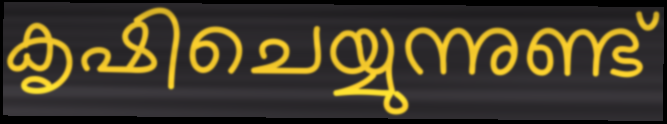
കൃഷിചെയ്യുന്നുണ്ട്